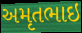
અમૃતભાઇ